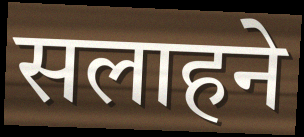
सलाहने